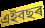
এইবছৰ